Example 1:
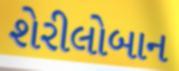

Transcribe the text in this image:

શેરીલોબાન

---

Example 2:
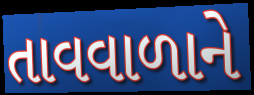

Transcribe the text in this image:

તાવવાળાને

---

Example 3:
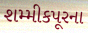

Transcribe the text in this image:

શમ્મીકપૂરના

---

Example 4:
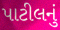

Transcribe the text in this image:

પાટીલનું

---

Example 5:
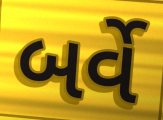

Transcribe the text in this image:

બર્વે